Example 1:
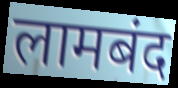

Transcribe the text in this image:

लामबंद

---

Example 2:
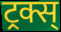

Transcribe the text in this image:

ट्रक्स्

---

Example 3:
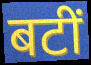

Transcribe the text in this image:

बटीं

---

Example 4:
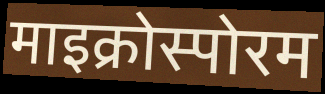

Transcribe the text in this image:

माइक्रोस्पोरम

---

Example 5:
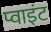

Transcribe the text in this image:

प्वाइंट